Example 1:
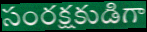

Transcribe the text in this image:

సంరక్షకుడిగా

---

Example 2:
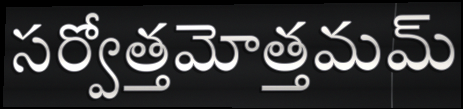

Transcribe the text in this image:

సర్వోత్తమోత్తమమ్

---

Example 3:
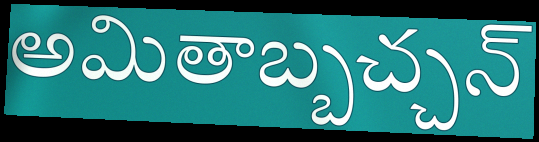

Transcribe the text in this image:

అమితాబ్బచ్చన్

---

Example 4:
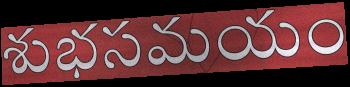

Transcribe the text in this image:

శుభసమయం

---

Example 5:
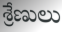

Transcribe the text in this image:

శ్రేణులు